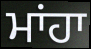
ਮਾਂਹਾ